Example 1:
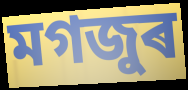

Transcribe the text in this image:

মগজুৰ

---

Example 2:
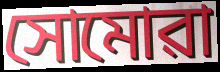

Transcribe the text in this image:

সোমোৱা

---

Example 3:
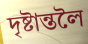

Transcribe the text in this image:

দৃষ্টান্তলৈ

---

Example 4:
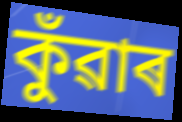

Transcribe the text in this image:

কুঁৱাৰ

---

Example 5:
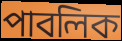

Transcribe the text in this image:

পাবলিক